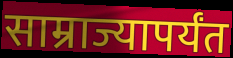
साम्राज्यापर्यंत